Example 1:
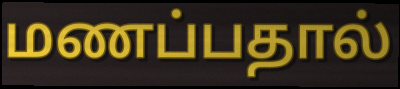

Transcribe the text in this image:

மணப்பதால்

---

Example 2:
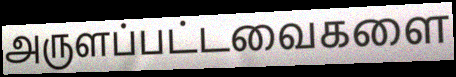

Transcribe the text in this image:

அருளப்பட்டவைகளை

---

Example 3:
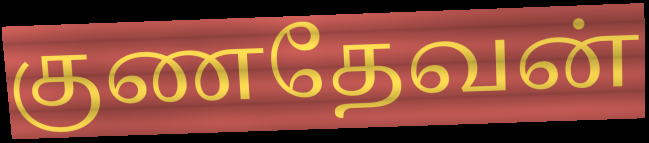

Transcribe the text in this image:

குணதேவன்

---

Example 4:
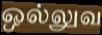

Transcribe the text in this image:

ஒல்லுவ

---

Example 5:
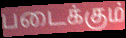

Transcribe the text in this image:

படைக்கும்